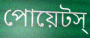
পোয়েটস্